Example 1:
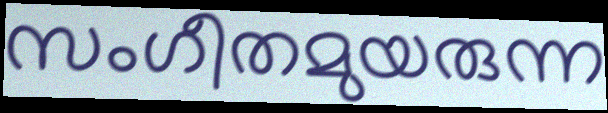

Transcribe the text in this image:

സംഗീതമുയരുന്ന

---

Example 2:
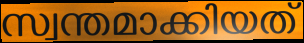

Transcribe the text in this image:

സ്വന്തമാക്കിയത്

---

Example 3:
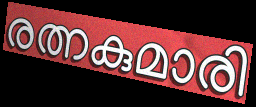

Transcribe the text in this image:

രത്നകുമാരി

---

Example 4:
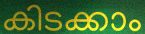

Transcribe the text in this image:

കിടക്കാം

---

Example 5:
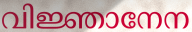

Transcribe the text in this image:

വിജ്ഞാനേന